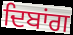
ਦਿਬਾਂਗ